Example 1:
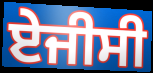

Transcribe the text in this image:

ਏਜੀਸੀ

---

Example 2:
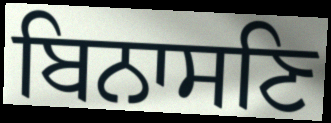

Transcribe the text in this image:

ਬਿਨਾਸਣਿ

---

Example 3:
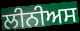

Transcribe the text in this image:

ਲੀਨੀਅਸ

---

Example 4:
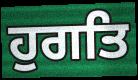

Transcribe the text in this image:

ਹੁਗਤਿ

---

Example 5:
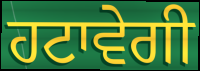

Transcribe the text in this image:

ਹਟਾਵੇਗੀ